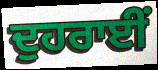
ਦੁਹਰਾਈਂ